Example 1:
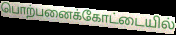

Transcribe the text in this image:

பொற்பனைக்கோட்டையில்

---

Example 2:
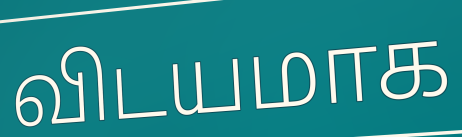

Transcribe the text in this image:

விடயமாக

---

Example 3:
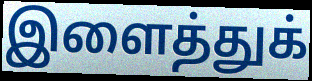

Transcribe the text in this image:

இளைத்துக்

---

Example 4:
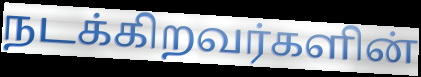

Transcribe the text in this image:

நடக்கிறவர்களின்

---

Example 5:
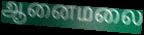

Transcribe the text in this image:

ஆனைமலை